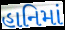
હાનિમાં